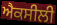
ਐਕਸੀਲੀ